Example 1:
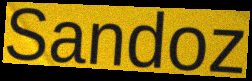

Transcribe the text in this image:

Sandoz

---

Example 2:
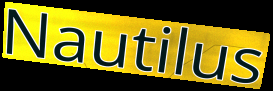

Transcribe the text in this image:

Nautilus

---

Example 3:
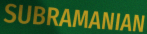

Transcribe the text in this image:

SUBRAMANIAN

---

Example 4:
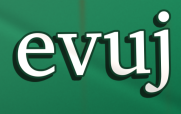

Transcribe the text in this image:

evuj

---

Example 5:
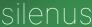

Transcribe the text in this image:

silenus